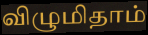
விழுமிதாம்